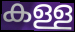
കള്ള